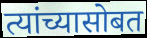
त्यांच्यासोबत